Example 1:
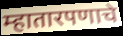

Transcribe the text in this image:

म्हातारपणाचे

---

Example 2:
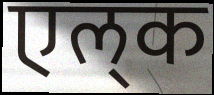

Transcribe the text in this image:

एल्क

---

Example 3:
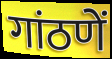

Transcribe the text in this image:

गांठणें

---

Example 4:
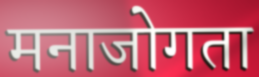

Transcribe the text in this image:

मनाजोगता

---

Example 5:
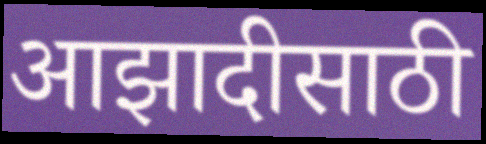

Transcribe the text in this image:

आझादीसाठी